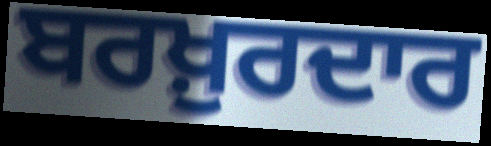
ਬਰਖ਼ੁਰਦਾਰ